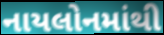
નાયલોનમાંથી